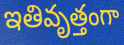
ఇతివృత్తంగా